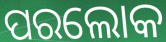
ପରଲୋକ